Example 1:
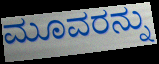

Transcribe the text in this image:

ಮೂವರನ್ನು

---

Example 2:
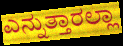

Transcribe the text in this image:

ಎನ್ನುತ್ತಾರಲ್ಲಾ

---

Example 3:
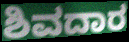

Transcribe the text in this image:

ಶಿವದಾರ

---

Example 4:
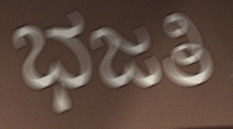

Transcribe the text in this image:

ಭಜತಿ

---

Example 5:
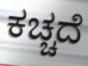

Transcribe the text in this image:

ಕಚ್ಚದೆ